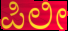
ಪಿಲೀ